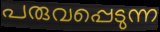
പരുവപ്പെടുന്ന